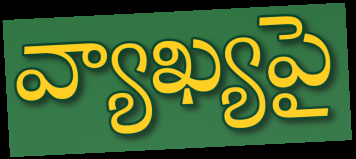
వ్యాఖ్యపై